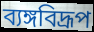
ব্যঙ্গবিদ্রূপ